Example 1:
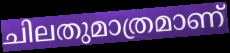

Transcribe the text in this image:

ചിലതുമാത്രമാണ്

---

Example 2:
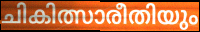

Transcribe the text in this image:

ചികിത്സാരീതിയും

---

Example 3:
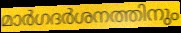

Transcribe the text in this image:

മാർഗദർശനത്തിനും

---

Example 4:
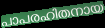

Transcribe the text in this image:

പാപരഹിതനായ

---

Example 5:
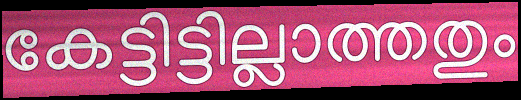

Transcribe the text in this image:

കേട്ടിട്ടില്ലാത്തതും